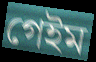
গেইম